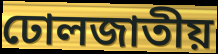
ঢোলজাতীয়